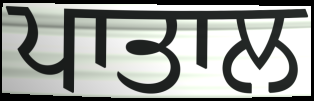
ਪਾਤਾਲ